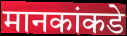
मानकांकडे